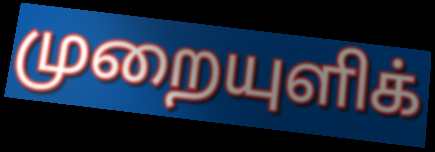
முறையுளிக்